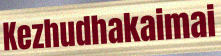
Kezhudhakaimai